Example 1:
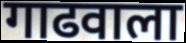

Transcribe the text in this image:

गाढवाला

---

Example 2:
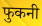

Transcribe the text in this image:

फुकनी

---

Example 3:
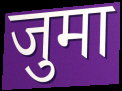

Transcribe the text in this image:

जुमा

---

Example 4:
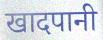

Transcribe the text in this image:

खादपानी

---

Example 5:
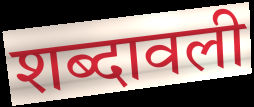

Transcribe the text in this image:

शब्दावली